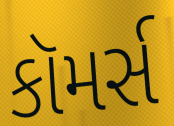
કૉમર્સ